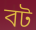
বট